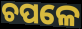
ଚପଳେ